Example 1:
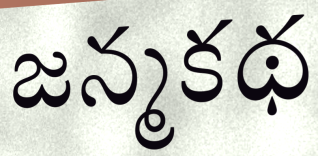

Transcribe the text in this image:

జన్మకథ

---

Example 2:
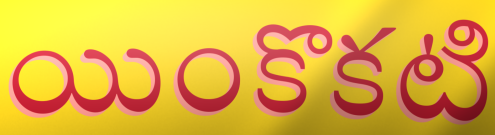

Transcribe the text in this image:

యింకొకటి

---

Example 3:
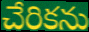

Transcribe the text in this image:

చేరికను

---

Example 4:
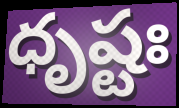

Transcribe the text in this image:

ధృష్టః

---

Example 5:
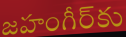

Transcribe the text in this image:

జహంగీర్‌కు